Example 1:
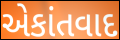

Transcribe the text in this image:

એકાંતવાદ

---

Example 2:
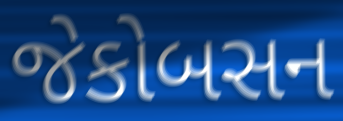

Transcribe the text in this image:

જેકોબસન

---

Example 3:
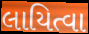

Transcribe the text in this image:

લાયિત્વા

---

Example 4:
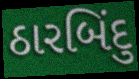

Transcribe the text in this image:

ઠારબિંદુ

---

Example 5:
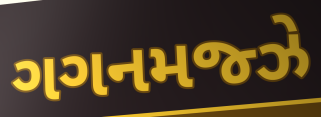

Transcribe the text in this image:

ગગનમજ્ઝે